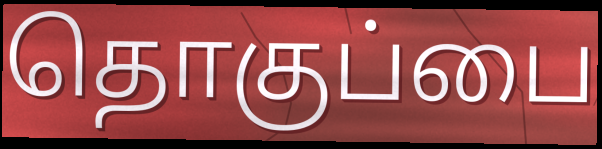
தொகுப்பை